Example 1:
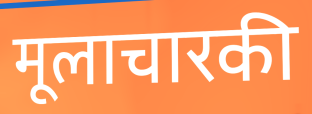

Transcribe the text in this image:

मूलाचारकी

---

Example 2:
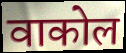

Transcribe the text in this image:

वाकोल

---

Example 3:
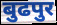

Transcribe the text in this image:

बुढपुर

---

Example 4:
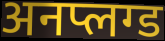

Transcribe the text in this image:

अनप्लग्ड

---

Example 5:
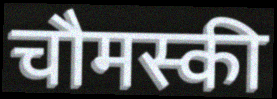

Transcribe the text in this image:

चौमस्की